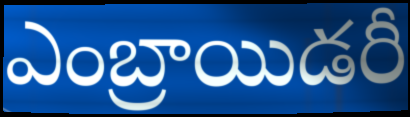
ఎంబ్రాయిడరీ